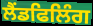
ਲੈਂਡਫਿਲਿੰਗ